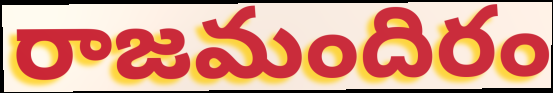
రాజమందిరం